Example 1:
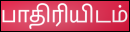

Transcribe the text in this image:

பாதிரியிடம்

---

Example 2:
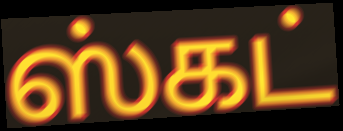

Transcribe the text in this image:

ஸ்கட்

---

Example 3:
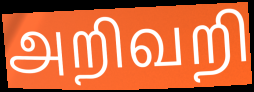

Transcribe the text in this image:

அறிவறி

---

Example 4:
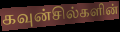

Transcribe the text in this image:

கவுன்சில்களின்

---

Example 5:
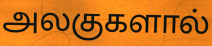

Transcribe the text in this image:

அலகுகளால்